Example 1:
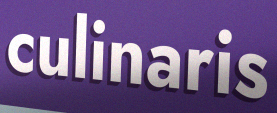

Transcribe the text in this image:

culinaris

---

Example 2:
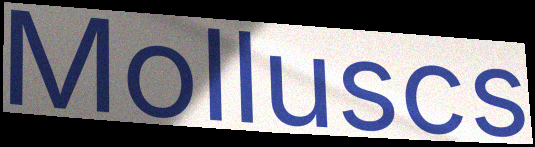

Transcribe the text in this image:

Molluscs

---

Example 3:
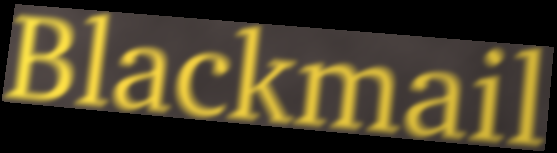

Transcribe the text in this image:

Blackmail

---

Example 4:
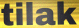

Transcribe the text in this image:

tilak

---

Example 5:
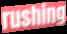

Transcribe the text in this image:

rushing